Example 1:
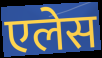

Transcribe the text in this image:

एलेस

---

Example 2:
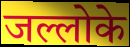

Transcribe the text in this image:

जल्लोके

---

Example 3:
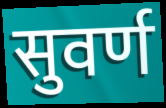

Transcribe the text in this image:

सुवर्ण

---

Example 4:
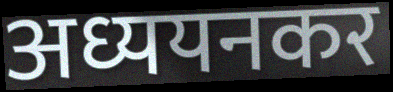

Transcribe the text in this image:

अध्ययनकर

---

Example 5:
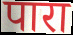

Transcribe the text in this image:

पारा